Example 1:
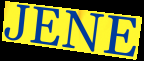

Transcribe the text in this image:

JENE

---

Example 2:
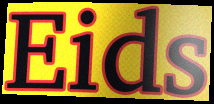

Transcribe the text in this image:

Eids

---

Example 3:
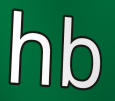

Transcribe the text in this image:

hb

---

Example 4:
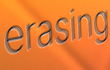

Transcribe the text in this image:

erasing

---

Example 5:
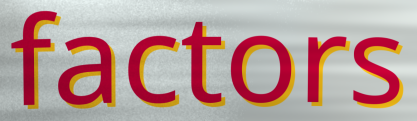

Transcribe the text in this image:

factors